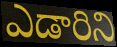
ఎడారిని